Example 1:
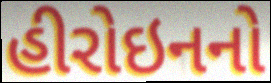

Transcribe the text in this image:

હીરોઇનનો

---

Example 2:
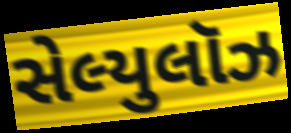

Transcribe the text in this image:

સેલ્યુલૉઝ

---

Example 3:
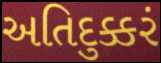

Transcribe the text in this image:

અતિદુક્કરં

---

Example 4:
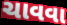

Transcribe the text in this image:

ચાવવા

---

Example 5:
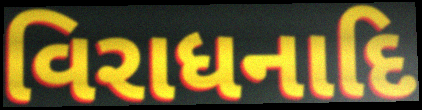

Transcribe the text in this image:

વિરાધનાદિ